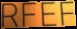
RFEF